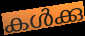
കൾക്കു